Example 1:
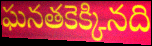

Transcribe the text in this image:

ఘనతకెక్కినది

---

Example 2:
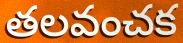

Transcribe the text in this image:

తలవంచక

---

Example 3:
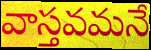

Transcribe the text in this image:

వాస్తవమనే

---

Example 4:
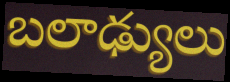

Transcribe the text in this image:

బలాఢ్యులు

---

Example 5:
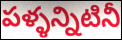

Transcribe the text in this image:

పళ్ళన్నిటినీ